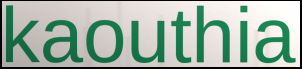
kaouthia